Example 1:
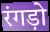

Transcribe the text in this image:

रंगड़ो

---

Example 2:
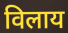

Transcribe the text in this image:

विलाय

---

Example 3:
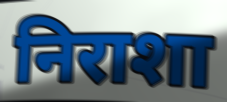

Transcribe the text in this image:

निराशा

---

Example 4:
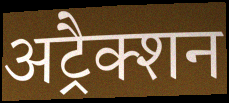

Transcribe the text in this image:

अट्रैक्शन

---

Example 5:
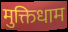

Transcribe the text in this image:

मुक्तिधाम